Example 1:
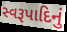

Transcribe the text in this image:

સ્વરૂપાદિનું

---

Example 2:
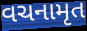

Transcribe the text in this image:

વચનામૃત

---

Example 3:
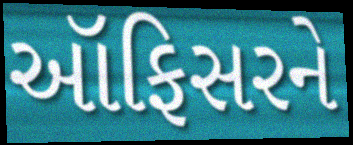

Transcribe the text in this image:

ઑફિસરને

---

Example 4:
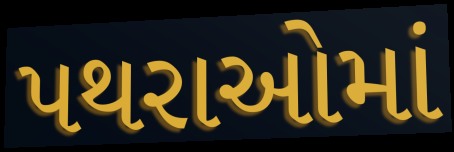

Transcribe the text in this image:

પથરાઓમાં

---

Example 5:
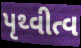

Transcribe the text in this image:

પૃથ્વીત્વ